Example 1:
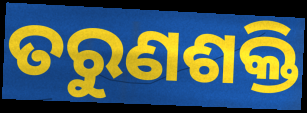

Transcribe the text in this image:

ତରୁଣଶକ୍ତି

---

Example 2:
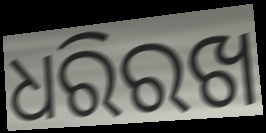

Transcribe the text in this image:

ଧରିରଖ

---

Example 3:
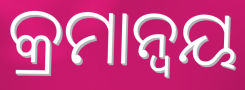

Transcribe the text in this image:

କ୍ରମାନ୍ୱୟ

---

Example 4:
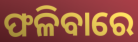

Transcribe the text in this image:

ଫଳିବାରେ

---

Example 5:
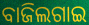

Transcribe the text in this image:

ବାଜିଲଗାଇ